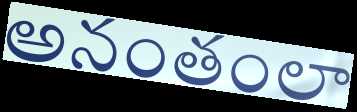
అనంతంలా